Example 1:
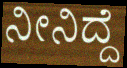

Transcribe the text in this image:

ನೀನಿದ್ದೆ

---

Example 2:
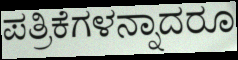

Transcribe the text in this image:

ಪತ್ರಿಕೆಗಳನ್ನಾದರೂ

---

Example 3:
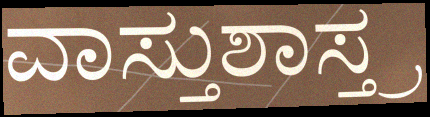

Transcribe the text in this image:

ವಾಸ್ತುಶಾಸ್ತ್ರ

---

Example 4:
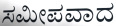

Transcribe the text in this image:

ಸಮೀಪವಾದ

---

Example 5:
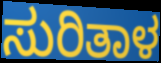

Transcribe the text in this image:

ಸುರಿತಾಳ